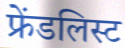
फ्रेंडलिस्ट